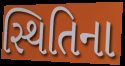
સ્થિતિના